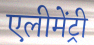
एलीमेंट्री